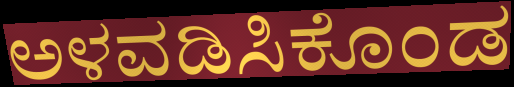
ಅಳವಡಿಸಿಕೊಂಡ